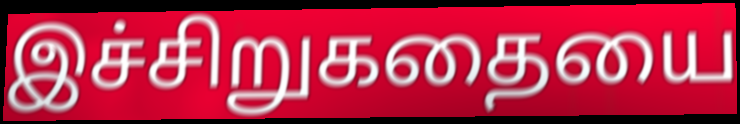
இச்சிறுகதையை